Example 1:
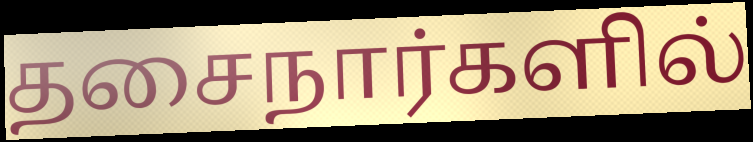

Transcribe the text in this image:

தசைநார்களில்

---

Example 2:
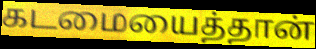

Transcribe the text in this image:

கடமையைத்தான்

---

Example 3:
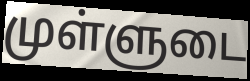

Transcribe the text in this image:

முள்ளுடை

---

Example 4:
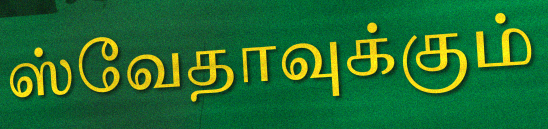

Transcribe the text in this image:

ஸ்வேதாவுக்கும்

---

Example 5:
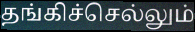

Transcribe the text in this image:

தங்கிச்செல்லும்